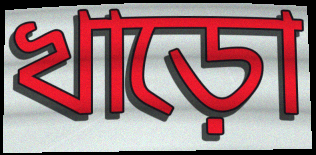
খাড়ো